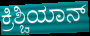
ಕ್ರಿಶ್ಚಿಯಾನ್